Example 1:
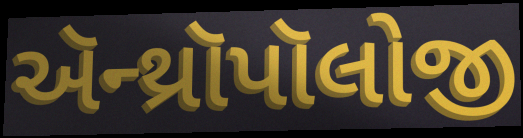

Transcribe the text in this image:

ઍન્થ્રૉપૉલોજી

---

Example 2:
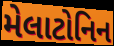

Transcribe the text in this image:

મેલાટોનિન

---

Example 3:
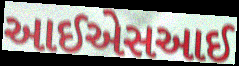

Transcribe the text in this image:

આઈએસઆઈ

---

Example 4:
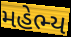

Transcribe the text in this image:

મહેભ્ય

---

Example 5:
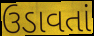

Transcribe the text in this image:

ઉડાવતાં